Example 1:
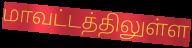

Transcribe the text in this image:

மாவட்டத்திலுள்ள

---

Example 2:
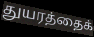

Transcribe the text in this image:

துயரத்தைக்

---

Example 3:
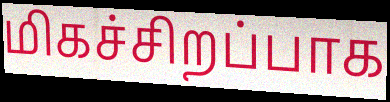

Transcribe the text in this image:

மிகச்சிறப்பாக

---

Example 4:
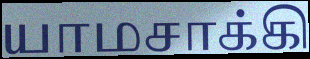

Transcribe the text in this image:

யாமசாக்கி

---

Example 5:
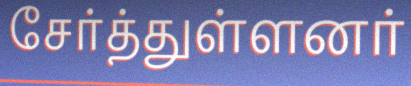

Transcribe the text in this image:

சேர்த்துள்ளனர்